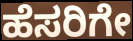
ಹೆಸರಿಗೇ